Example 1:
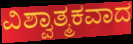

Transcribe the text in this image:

ವಿಶ್ವಾತ್ಮಕವಾದ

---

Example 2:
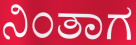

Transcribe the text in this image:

ನಿಂತಾಗ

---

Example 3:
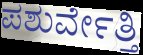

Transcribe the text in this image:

ಪಶುರ್ವೇತ್ತಿ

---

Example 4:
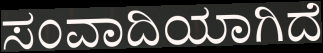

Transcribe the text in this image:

ಸಂವಾದಿಯಾಗಿದೆ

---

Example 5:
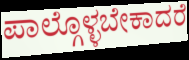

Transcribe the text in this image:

ಪಾಲ್ಗೊಳ್ಳಬೇಕಾದರೆ